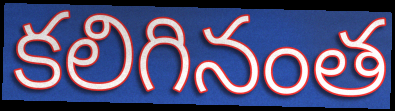
కలిగినంత